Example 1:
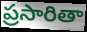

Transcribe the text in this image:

ప్రసారితా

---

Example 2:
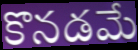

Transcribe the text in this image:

కొనడమే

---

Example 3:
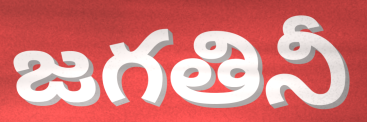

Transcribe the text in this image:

జగతినీ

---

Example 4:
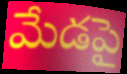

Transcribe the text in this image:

మేడపై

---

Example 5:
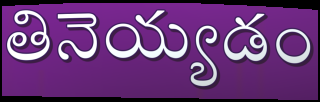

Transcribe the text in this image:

తినెయ్యడం